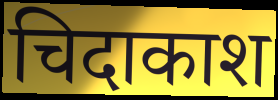
चिदाकाश